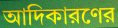
আদিকারণের